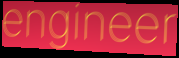
engineer